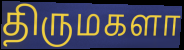
திருமகளா